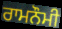
ਰਾਮਨੌਮੀ